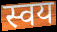
स्वय